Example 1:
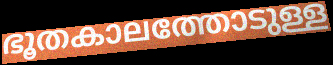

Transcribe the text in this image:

ഭൂതകാലത്തോടുള്ള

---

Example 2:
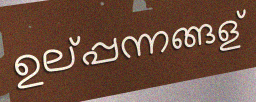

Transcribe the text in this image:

ഉല്പ്പന്നങ്ങള്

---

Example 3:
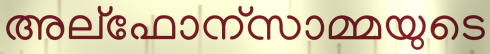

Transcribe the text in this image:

അല്ഫോന്സാമ്മയുടെ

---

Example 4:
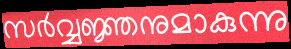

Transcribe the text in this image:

സർവ്വജ്ഞനുമാകുന്നു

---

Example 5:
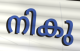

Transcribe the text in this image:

നികു